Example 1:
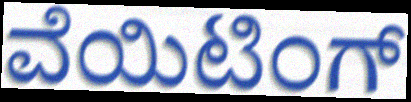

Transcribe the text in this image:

ವೆಯಿಟಿಂಗ್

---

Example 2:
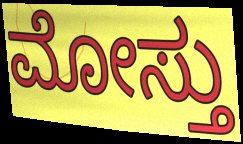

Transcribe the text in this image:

ಮೋಸ್ತು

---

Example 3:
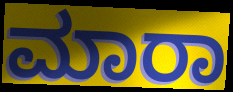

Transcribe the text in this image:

ಮಾರಾ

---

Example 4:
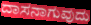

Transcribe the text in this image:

ದಾಸನಾಗುವುದು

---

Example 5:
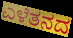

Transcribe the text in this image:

ಎಳೆತನದ